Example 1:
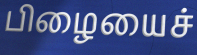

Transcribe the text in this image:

பிழையைச்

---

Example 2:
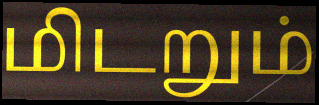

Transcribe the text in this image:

மிடறும்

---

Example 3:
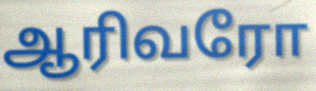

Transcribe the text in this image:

ஆரிவரோ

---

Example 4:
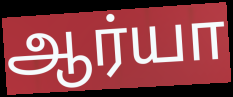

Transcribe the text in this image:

ஆர்யா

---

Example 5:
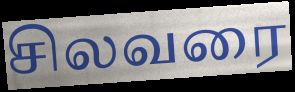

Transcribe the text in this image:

சிலவரை